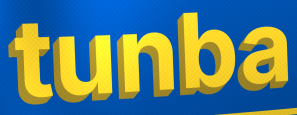
tunba